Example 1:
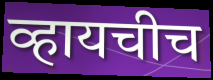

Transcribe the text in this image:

व्हायचीच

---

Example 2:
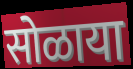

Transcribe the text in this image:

सोळाया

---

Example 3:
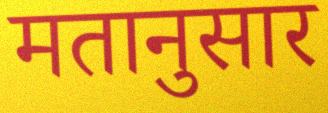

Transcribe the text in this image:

मतानुसार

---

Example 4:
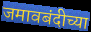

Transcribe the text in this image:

जमावबंदीच्या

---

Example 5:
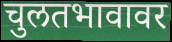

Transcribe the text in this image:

चुलतभावावर